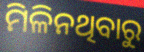
ମିଳିନଥିବାରୁ